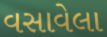
વસાવેલા